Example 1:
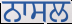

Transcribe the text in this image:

ਨਾਸਲ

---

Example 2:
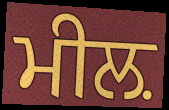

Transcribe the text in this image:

ਮੀਲ਼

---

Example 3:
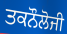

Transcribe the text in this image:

ਤਕਨੌਲੋਜੀ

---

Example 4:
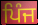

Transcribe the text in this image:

ਪਿੰਜ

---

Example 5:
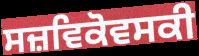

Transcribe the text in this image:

ਸਜ਼ਵਿਕੋਵਸਕੀ